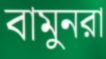
বামুনরা